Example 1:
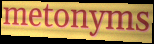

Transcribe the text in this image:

metonyms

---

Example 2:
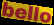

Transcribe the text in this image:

bello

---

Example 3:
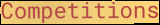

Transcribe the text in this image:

Competitions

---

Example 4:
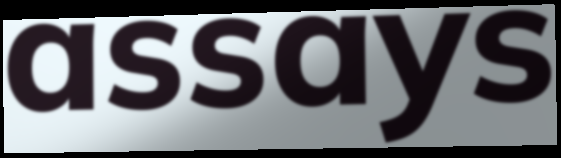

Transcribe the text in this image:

assays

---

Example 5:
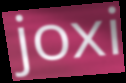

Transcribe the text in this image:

joxi